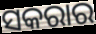
ସକରାର